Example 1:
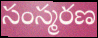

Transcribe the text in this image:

సంస్మరణ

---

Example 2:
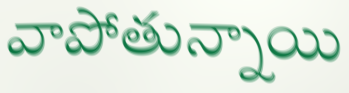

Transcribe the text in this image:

వాపోతున్నాయి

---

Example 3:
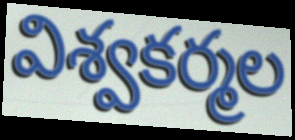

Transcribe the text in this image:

విశ్వకర్మల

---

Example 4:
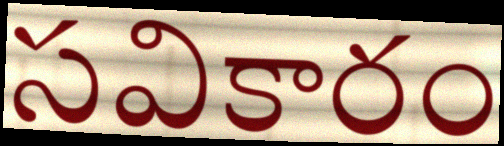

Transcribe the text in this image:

సవికారం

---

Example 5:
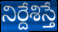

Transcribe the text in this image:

నిర్దేశిస్తే